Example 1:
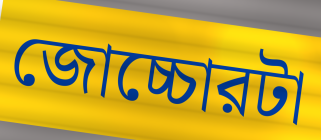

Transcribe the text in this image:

জোচ্চোরটা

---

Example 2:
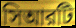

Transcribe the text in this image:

সিআরটি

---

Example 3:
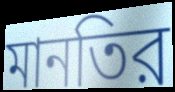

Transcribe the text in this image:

মানতির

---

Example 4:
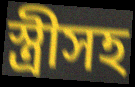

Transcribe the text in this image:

স্ত্রীসহ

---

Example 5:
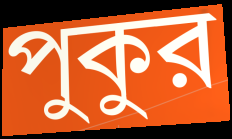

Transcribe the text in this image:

পুকুর